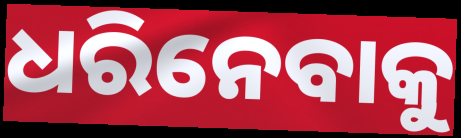
ଧରିନେବାକୁ